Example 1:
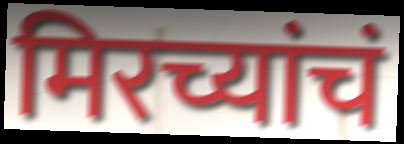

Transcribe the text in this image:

मिरच्यांचं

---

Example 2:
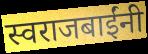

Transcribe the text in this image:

स्वराजबाईंनी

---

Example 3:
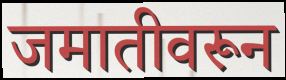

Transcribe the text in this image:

जमातीवरून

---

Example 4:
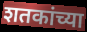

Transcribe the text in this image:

शतकांच्या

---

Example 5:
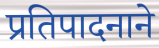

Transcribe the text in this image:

प्रतिपादनाने